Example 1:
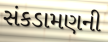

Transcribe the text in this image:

સંકડામણની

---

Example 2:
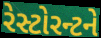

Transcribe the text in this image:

રેસ્ટોરન્ટને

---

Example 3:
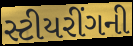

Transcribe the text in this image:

સ્ટીયરીંગની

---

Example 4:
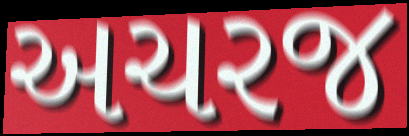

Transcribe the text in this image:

અચરજ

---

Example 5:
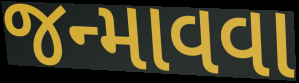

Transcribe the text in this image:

જન્માવવા